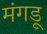
मंगडू